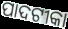
ପାଦଟୀକା